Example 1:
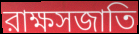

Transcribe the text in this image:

রাক্ষসজাতি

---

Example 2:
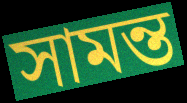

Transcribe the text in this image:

সামন্ত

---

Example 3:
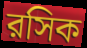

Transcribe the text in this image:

রসিক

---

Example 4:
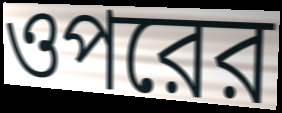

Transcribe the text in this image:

ওপরের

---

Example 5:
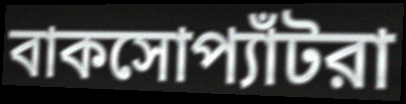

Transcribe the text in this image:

বাকসোপ্যাঁটরা